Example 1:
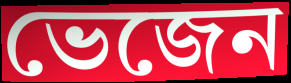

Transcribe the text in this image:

ভেজেন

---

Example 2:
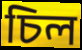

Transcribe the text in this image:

চিল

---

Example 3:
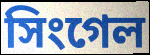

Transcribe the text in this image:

সিংগেল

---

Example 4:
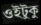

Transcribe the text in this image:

ওইটুকু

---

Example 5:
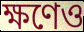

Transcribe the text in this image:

ক্ষণেও